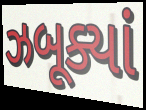
ઝબૂક્યાં